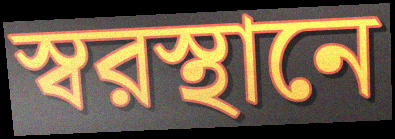
স্বরস্থানে